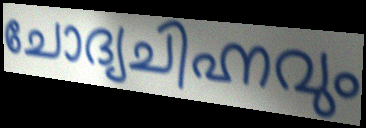
ചോദ്യചിഹ്നവും